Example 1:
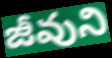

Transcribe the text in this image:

జీవుని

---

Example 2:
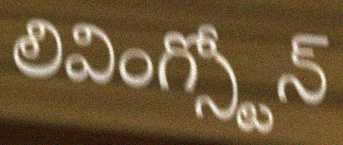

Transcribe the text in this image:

లివింగ్స్టోన్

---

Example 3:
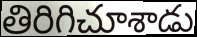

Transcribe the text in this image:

తిరిగిచూశాడు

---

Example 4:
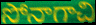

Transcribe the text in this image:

సోనాగాచి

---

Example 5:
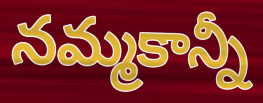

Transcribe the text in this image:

నమ్మకాన్నీ